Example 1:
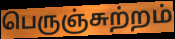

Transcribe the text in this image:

பெருஞ்சுற்றம்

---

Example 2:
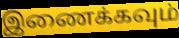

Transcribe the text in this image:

இணைக்கவும்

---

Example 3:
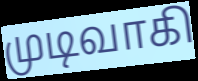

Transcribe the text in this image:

முடிவாகி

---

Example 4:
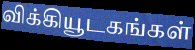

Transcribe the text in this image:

விக்கியூடகங்கள்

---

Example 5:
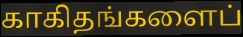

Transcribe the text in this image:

காகிதங்களைப்